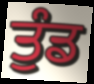
ਤੁੰਡ